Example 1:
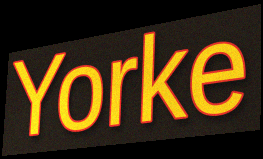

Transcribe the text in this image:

Yorke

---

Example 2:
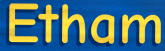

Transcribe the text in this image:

Etham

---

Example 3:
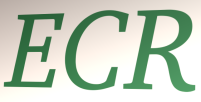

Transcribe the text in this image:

ECR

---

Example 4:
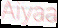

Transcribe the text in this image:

Aiyaa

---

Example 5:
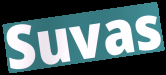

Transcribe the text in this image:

Suvas